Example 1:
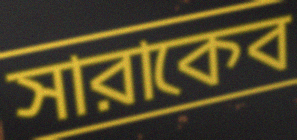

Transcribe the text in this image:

সারাকেব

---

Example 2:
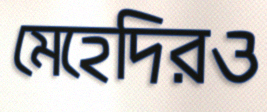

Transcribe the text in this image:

মেহেদিরও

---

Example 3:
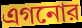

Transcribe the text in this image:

এগনোর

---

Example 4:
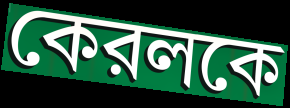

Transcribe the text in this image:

কেরলকে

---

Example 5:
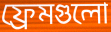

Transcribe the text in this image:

ফ্রেমগুলো